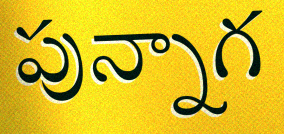
పున్నాగ